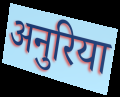
अनुरिया